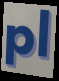
pl